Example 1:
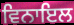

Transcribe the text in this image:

ਵਿਨਾਇਲ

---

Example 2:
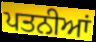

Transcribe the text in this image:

ਪਤਨੀਆਂ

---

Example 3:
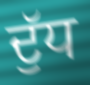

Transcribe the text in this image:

ਦੁੱਧ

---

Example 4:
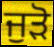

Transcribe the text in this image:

ਜੁੜੋ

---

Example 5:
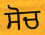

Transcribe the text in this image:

ਸੋਚ